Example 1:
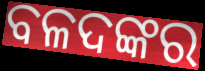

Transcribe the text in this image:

ବଳଦଙ୍କର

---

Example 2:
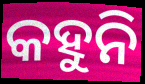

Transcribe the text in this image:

କହୁନି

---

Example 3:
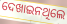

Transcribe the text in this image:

ଦେଖାଇନଥିଲେ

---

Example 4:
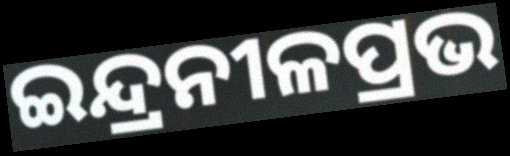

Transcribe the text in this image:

ଇନ୍ଦ୍ରନୀଳପ୍ରଭ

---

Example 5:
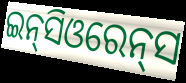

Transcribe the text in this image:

ଇନ୍‌ସିଓରେନ୍‌ସ